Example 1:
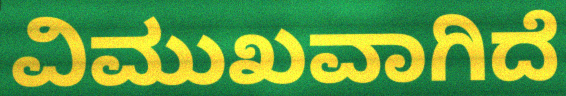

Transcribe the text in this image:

ವಿಮುಖವಾಗಿದೆ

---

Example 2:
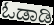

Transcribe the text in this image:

ಓಡಾಡಿ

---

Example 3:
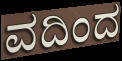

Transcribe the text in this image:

ವದಿಂದ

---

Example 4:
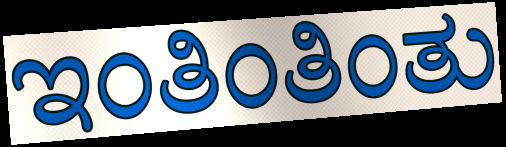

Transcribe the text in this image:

ಇಂತಿಂತಿಂತು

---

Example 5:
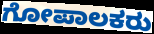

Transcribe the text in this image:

ಗೋಪಾಲಕರು